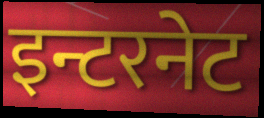
इन्‍टरनेट